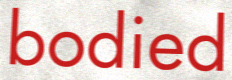
bodied